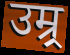
उम्र्र